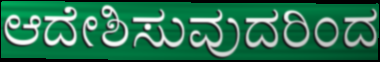
ಆದೇಶಿಸುವುದರಿಂದ